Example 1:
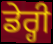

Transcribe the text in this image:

ਡੇਰ੍ਹੀ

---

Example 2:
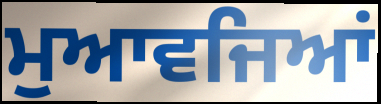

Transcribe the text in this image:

ਮੁਆਵਜਿਆਂ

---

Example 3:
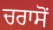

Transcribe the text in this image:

ਚਰਾਸੋਂ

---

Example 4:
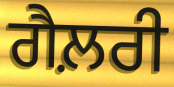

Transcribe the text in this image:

ਗੈਲ਼ਰੀ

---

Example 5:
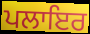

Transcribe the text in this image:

ਪਲਾਇਰ